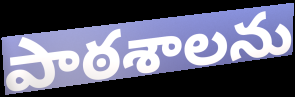
పాఠశాలను